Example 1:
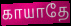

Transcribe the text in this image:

காயாதே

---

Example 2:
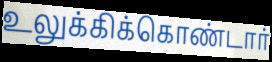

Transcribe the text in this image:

உலுக்கிக்கொண்டார்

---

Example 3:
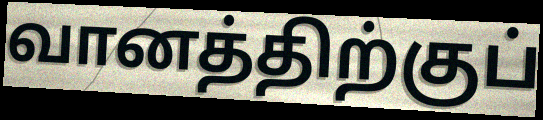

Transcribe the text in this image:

வானத்திற்குப்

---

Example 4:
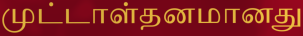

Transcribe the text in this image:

முட்டாள்தனமானது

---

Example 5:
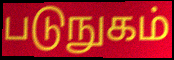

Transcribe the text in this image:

படுநுகம்